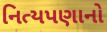
નિત્યપણાનો